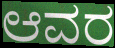
ಆವರ